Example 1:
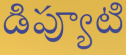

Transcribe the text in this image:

డిప్యూటి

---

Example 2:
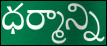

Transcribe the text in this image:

ధర్మాన్ని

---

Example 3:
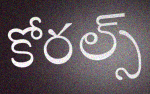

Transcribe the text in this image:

కోరల్స్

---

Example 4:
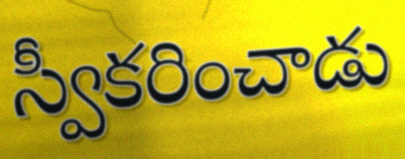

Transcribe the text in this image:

స్వీకరించాడు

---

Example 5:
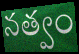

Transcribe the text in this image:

నత్వం